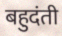
बहुदंती